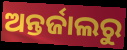
ଅନ୍ତର୍ଜାଲରୁ